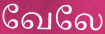
வேலே